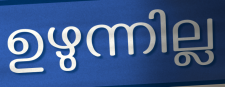
ഉഴുന്നില്ല